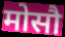
मोसौ